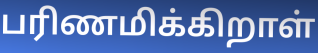
பரிணமிக்கிறாள்